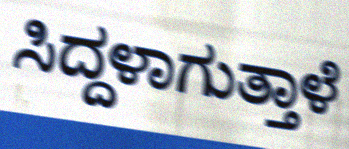
ಸಿದ್ದಳಾಗುತ್ತಾಳೆ